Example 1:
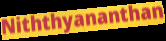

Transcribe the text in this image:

Niththyananthan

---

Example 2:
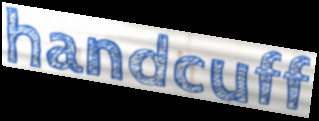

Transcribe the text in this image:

handcuff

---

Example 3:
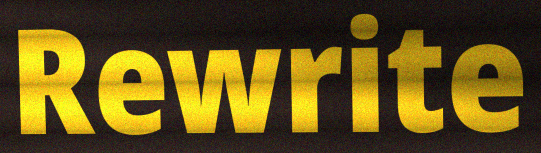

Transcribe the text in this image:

Rewrite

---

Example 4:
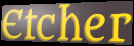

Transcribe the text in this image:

Etcher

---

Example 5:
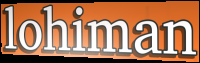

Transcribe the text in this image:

lohiman